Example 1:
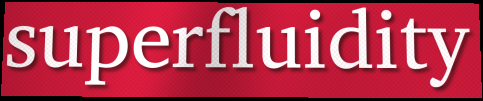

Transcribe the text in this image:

superfluidity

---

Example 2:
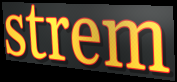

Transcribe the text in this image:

strem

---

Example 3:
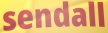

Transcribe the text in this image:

sendall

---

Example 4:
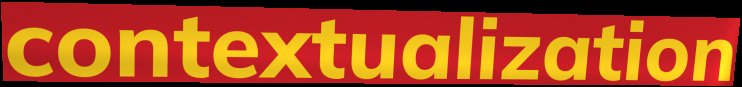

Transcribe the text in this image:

contextualization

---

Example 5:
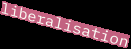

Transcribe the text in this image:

liberalisation